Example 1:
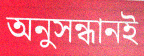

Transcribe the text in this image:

অনুসন্ধানই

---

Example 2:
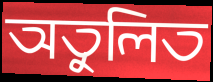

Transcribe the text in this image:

অতুলিত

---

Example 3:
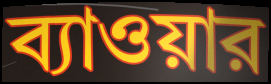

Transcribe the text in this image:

ব্যাওয়ার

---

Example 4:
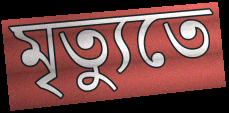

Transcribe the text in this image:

মৃত্যুতে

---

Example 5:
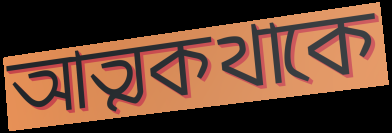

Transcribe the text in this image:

আত্মকথাকে